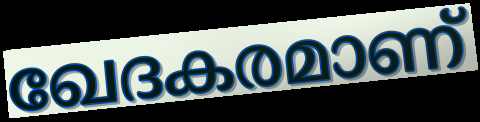
ഖേദകരമാണ്